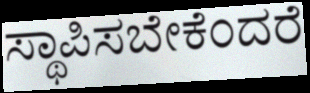
ಸ್ಥಾಪಿಸಬೇಕೆಂದರೆ